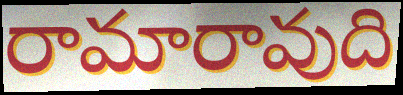
రామారావుది